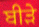
ਬੀੜੇ